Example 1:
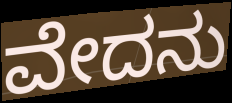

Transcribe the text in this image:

ವೇದನು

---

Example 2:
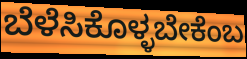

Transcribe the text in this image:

ಬೆಳೆಸಿಕೊಳ್ಳಬೇಕೆಂಬ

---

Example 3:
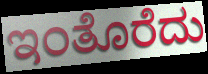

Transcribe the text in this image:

ಇಂತೊರೆದು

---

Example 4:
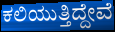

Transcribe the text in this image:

ಕಲಿಯುತ್ತಿದ್ದೇವೆ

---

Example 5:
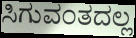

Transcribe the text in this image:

ಸಿಗುವಂತದಲ್ಲ